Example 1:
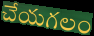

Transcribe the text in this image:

చేయగలం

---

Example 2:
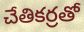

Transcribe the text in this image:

చేతికర్రతో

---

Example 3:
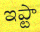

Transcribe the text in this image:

ఇప్టా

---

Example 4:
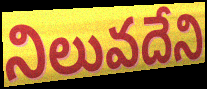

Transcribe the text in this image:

నిలువదేని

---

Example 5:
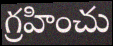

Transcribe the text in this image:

గ్రహించు